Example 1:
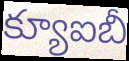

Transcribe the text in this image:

క్యూఐబీ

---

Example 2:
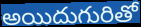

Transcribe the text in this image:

అయిదుగురితో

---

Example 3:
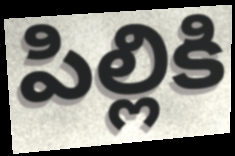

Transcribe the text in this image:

పిల్లికి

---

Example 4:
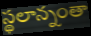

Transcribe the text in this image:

స్థలాన్నంతా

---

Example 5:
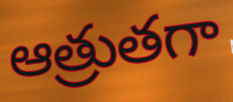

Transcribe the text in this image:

ఆత్రుతగా